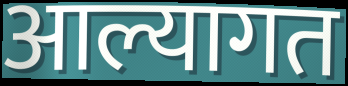
आल्यागत